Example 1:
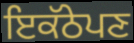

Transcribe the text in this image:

ਇਕੱਠੇਪਣ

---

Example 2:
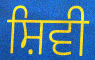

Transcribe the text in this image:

ਸ਼ਿਵੀ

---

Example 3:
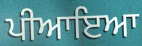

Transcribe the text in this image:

ਪੀਆਇਆ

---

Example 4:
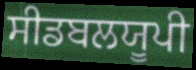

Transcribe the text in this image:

ਸੀਡਬਲਯੂਪੀ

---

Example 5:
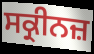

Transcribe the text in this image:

ਸਕ੍ਰੀਨਜ਼